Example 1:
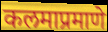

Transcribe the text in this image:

कलमाप्रमाणे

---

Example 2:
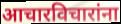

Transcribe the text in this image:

आचारविचारांना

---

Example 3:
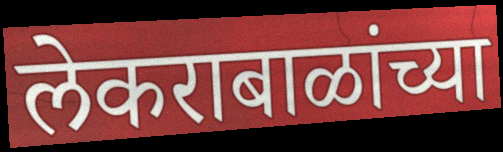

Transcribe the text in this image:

लेकराबाळांच्या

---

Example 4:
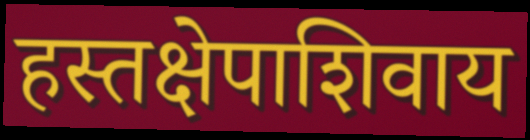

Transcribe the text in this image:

हस्तक्षेपाशिवाय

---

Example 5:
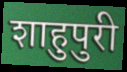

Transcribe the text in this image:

शाहुपुरी